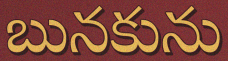
బునకును